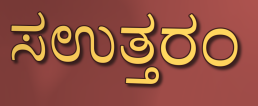
ಸಉತ್ತರಂ